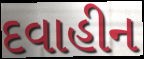
દવાહીન